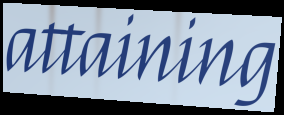
attaining